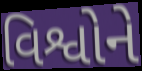
વિશ્વોને